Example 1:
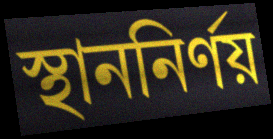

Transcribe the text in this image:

স্থাননির্ণয়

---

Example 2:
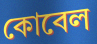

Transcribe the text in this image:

কোবেল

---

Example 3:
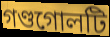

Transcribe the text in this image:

গণ্ডগোলটি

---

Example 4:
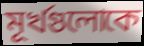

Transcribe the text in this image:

মূর্খগুলোকে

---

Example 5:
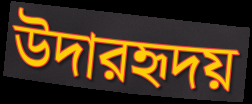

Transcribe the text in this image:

উদারহৃদয়